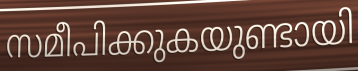
സമീപിക്കുകയുണ്ടായി